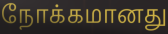
நோக்கமானது